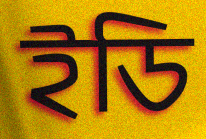
ইডি